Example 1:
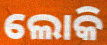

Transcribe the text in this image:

ଲୋକି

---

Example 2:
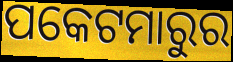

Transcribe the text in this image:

ପକେଟମାରୁର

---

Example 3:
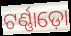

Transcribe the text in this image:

ଟର୍ଣ୍ଣାଡ଼ୋ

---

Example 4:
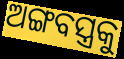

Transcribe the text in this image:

ଅଙ୍ଗବସ୍ତ୍ରକୁ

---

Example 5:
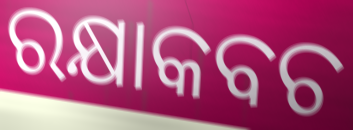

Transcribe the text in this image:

ରକ୍ଷାକବଚ